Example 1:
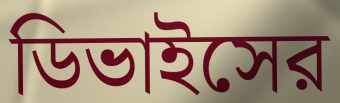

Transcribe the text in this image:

ডিভাইসের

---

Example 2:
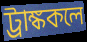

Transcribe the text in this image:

ট্রাঙ্ককলে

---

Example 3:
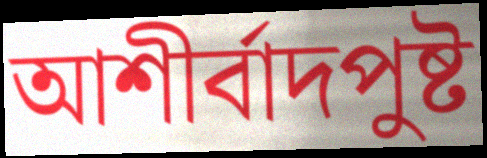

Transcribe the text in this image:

আশীর্বাদপুষ্ট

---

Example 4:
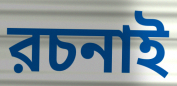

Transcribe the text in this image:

রচনাই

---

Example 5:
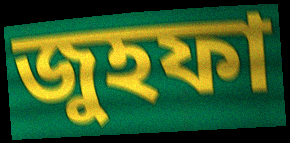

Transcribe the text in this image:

জুহফা